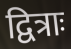
द्वित्राः